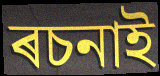
ৰচনাই